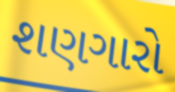
શણગારો